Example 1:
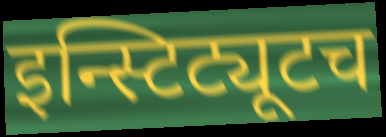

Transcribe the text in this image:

इन्स्टिट्यूटच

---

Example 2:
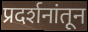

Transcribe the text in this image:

प्रदर्शनांतून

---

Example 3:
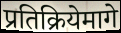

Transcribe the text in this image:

प्रतिक्रियेमागे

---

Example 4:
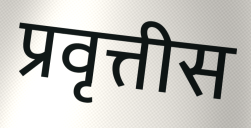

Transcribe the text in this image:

प्रवृत्तीस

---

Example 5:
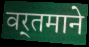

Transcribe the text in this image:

वर्तमाने